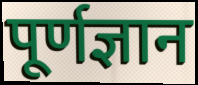
पूर्णज्ञान